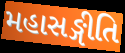
મહાસઙ્ગીતિ